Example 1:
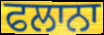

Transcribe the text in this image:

ਫਲਾਨਾ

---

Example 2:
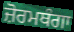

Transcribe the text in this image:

ਜ਼ੋਰਮਥੰਗਾ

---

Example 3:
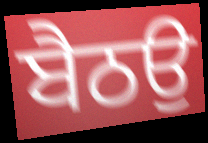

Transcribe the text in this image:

ਬੈਠਉ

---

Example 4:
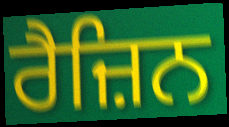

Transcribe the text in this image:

ਰੈਜ਼ਿਨ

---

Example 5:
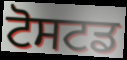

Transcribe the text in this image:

ਟੋਸਟਡ